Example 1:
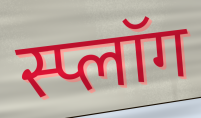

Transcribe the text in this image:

स्प्लॉग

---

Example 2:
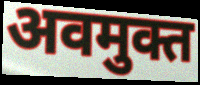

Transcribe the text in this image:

अवमुक्त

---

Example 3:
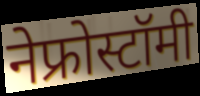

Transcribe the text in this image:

नेफ्रोस्टॉमी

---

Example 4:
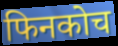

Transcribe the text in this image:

फिनकोच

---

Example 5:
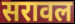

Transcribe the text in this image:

सरावल